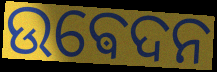
ଉଵେଦନ